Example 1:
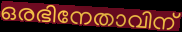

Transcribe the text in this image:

ഒരഭിനേതാവിന്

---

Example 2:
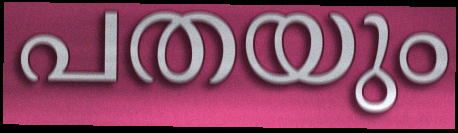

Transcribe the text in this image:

പതയും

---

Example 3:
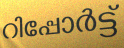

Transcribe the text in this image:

റിപ്പോർട്ട്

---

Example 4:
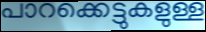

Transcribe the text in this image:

പാറക്കെട്ടുകളുള്ള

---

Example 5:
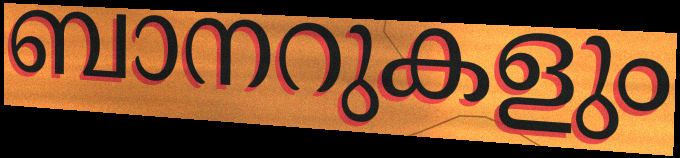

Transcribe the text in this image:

ബാനറുകളും